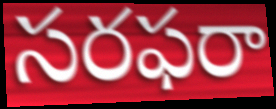
సరఫరా